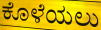
ಕೊಳೆಯಲು